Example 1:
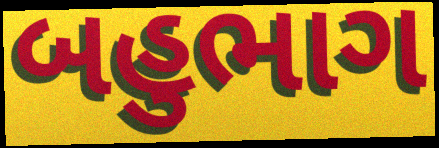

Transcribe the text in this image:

બહુભાગ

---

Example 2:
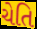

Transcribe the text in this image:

ચેતિ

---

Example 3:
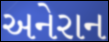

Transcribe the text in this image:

અનેરાન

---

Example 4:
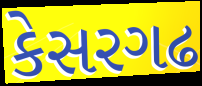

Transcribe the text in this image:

કેસરગઢ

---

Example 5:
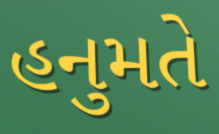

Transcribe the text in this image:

હનુમતે